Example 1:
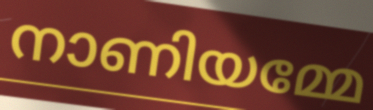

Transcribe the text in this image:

നാണിയമ്മേ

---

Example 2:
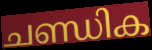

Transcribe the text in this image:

ചണ്ഡിക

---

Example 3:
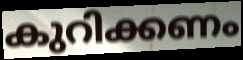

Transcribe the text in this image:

കുറിക്കണം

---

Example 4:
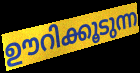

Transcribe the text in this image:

ഊറിക്കൂടുന്ന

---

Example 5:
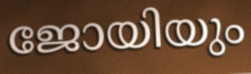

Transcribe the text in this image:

ജോയിയും